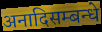
अनादिसम्बन्धे